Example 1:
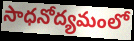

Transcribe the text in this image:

సాధనోద్యమంలో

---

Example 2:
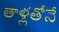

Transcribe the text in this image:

తాళ్లతోనే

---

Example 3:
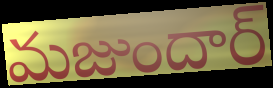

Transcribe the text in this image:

మజుందార్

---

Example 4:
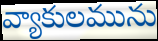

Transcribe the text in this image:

వ్యాకులమును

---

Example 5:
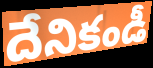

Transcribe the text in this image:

దేనికండీ